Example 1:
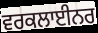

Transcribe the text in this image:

ਵਰਕਲਾਈਨਰ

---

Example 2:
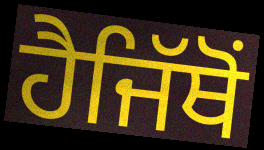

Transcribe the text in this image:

ਹੈਜਿੱਥੋਂ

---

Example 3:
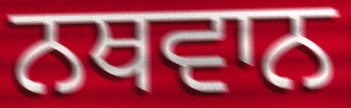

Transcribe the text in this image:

ਨਥਵਾਨ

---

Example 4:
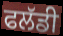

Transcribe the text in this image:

ਫਲੱਡੀ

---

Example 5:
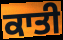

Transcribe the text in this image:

ਕਾਤੀ